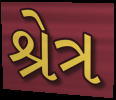
શ્રેત્ર